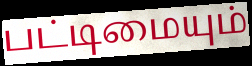
பட்டிமையும்